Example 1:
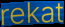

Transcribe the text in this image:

rekat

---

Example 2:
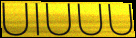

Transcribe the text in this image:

UIUUU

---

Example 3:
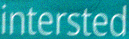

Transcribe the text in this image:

intersted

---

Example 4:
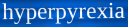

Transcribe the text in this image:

hyperpyrexia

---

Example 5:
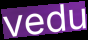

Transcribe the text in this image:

vedu